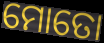
ମୋତୋ